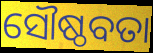
ସୌଷ୍ଠବତା